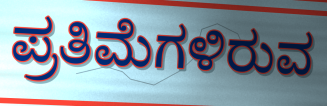
ಪ್ರತಿಮೆಗಳಿರುವ